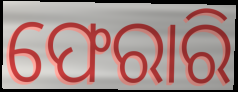
ଫେରାରି